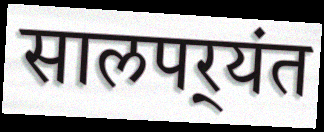
सालपर्यंत